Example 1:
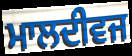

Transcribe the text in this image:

ਮਾਲਦੀਵਜ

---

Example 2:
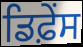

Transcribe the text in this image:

ਡਿਫ਼ੇੰਸ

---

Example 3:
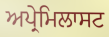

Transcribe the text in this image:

ਅਪ੍ਰੇਮਿਲਾਸਟ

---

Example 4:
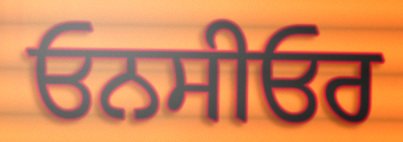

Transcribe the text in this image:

ਓਨਸੀਓਰ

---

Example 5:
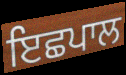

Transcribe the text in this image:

ਇਛਪਾਲ